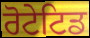
ਰੋਟੇਟਿਡ